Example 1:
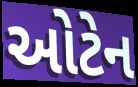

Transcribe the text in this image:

ઓટેન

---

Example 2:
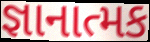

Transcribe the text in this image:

જ્ઞાનાત્મક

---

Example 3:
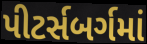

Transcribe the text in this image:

પીટર્સબર્ગમાં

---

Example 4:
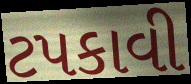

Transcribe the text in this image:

ટપકાવી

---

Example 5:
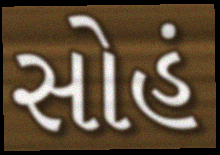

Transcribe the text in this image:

સોહં